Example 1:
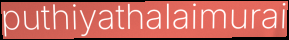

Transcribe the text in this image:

puthiyathalaimurai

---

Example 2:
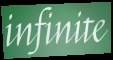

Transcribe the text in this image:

infinite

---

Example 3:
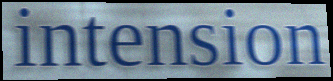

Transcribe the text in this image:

intension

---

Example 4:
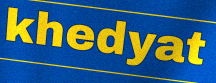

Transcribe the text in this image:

khedyat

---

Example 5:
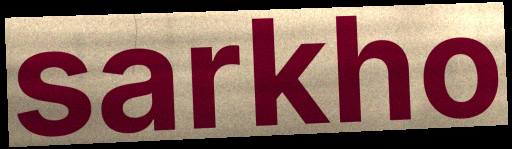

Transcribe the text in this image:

sarkho